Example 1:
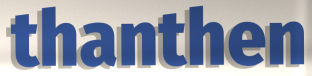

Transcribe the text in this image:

thanthen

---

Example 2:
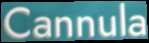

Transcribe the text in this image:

Cannula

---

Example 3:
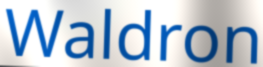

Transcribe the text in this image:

Waldron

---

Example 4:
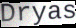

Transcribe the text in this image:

Dryas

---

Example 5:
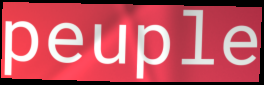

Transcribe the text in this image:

peuple